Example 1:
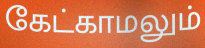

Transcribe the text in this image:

கேட்காமலும்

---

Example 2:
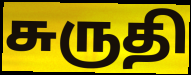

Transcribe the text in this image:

சுருதி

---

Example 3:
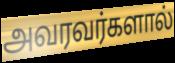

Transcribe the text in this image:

அவரவர்களால்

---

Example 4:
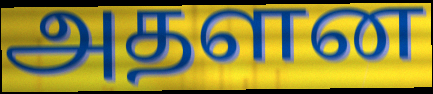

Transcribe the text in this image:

அதளன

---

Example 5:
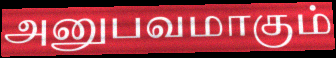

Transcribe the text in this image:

அனுபவமாகும்